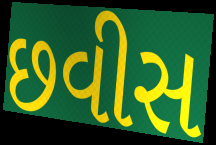
છવીસ